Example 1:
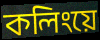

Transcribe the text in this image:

কলিংয়ে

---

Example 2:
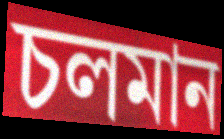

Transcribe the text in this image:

চলমান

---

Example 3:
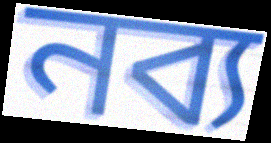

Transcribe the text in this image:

নব্য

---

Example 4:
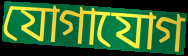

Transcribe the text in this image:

যোগাযোগ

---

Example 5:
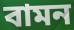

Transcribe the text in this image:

বামন